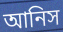
আনিস